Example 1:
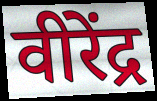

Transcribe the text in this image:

वीरेंद्र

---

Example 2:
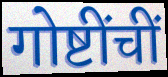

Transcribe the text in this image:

गोष्टींचीं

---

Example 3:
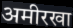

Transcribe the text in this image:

अमीरखा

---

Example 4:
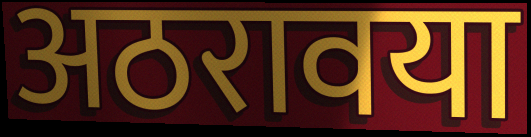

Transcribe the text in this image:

अठरावया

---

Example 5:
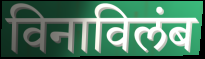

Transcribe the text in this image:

विनाविलंब